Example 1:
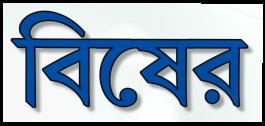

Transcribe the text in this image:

বিষের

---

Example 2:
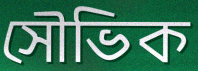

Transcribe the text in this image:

সৌভিক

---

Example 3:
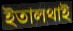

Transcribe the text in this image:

ইতালথাই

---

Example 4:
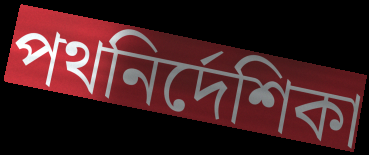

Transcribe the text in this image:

পথনির্দেশিকা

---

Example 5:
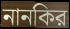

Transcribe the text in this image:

নানকির